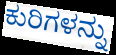
ಕುರಿಗಳನ್ನು